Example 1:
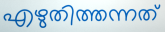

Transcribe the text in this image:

എഴുതിത്തന്നത്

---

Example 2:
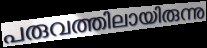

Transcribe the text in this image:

പരുവത്തിലായിരുന്നു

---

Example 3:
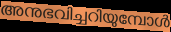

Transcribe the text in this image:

അനുഭവിച്ചറിയുമ്പോൾ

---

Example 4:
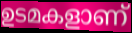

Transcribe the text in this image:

ഉടമകളാണ്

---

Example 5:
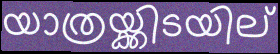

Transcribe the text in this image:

യാത്രയ്ക്കിടയില്